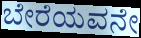
ಬೇರೆಯವನೇ